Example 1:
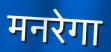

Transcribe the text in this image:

मनरेगा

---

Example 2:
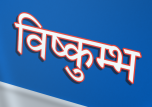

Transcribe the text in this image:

विष्कुम्भ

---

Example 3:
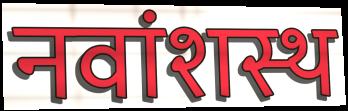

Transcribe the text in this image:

नवांशस्थ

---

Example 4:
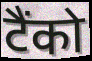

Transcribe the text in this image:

टैंको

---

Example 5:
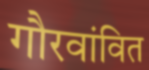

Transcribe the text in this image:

गौरवांवित